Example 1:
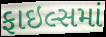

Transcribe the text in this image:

ફાઇલ્સમાં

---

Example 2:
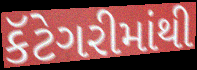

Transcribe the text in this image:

કૅટેગરીમાંથી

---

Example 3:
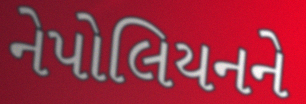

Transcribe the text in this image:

નેપોલિયનને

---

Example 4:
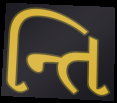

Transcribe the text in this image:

ન્તિ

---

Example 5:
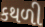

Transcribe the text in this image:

કથળી